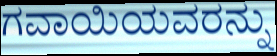
ಗವಾಯಿಯವರನ್ನು